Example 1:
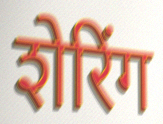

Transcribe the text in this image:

शेरिंग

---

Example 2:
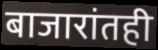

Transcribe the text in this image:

बाजारांतही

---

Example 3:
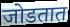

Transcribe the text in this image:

जोडतात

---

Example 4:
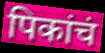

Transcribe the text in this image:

पिकांचं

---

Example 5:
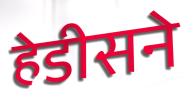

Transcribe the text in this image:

हेडीसने